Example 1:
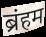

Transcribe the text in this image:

ब्रंहम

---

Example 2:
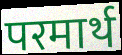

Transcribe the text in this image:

परमार्थ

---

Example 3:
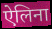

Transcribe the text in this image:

ऐलिना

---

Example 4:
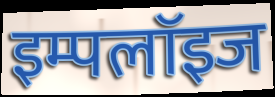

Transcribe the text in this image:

इम्पलॉइज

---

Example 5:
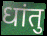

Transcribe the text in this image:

धांतु